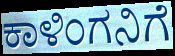
ಕಾಳಿಂಗನಿಗೆ